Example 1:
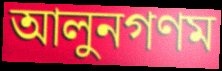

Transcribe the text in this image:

আলুনগণম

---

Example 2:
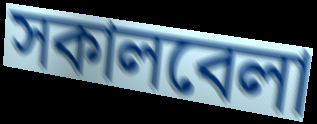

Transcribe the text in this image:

সকালবেলা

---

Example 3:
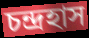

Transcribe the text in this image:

চন্দ্রহাস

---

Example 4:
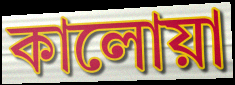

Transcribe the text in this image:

কালোয়া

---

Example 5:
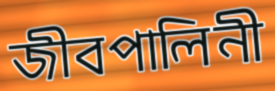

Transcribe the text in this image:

জীবপালিনী